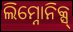
ଲିମ୍ନୋନିକ୍ସ୍